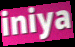
iniya